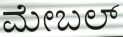
ಮೇಬಲ್